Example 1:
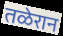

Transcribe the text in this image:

तळेरान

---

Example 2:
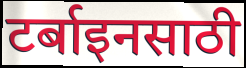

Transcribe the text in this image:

टर्बाइनसाठी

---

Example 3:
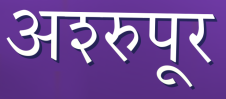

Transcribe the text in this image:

अश्रुपूर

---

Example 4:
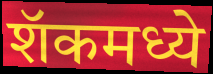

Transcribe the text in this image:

शॅकमध्ये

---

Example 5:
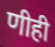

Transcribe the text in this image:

णीही